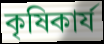
কৃষিকাৰ্য